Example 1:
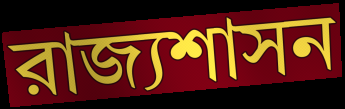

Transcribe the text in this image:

রাজ্যশাসন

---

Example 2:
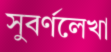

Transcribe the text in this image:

সুবর্ণলেখা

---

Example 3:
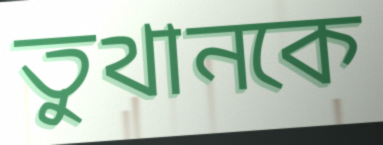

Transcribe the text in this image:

তুথানকে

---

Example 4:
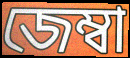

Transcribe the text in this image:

জেম্বা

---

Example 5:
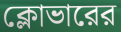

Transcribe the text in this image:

ক্লোভারের